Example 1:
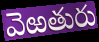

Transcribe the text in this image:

వెఱతురు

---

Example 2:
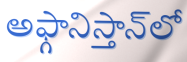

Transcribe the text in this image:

అఫ్గానిస్తాన్‌లో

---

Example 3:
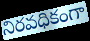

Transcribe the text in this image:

నిరవధికంగా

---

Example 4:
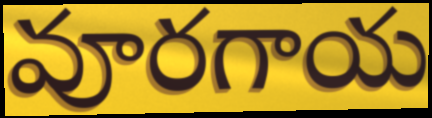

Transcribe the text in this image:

వూరగాయ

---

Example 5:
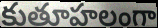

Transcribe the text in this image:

కుతూహలంగా